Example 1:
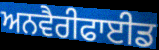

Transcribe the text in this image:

ਅਨਵੈਰੀਫਾਈਡ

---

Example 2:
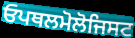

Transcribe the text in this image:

ਓਪਥਲਮੋਲੋਜਿਸਟ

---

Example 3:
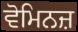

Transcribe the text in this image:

ਵੋਮਿਨਜ਼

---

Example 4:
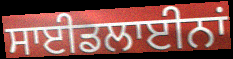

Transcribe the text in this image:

ਸਾਈਡਲਾਈਨਾਂ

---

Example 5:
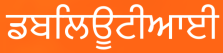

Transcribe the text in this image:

ਡਬਲਿਊਟੀਆਈ